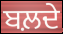
ਬਲ਼ਦੇ